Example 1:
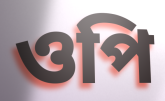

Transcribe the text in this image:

ওপি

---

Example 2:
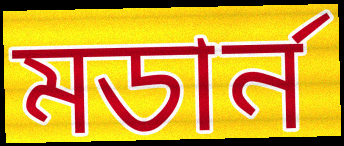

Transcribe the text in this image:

মডার্ন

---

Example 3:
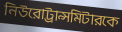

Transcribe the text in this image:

নিউরোট্রান্সমিটারকে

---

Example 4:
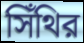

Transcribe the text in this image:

সিঁথির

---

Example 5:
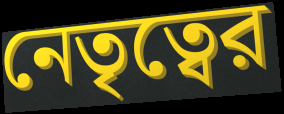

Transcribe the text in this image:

নেতৃত্বের